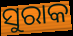
ସୁରାକ